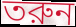
তরুন